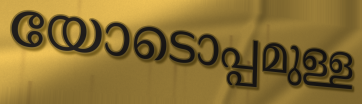
യോടൊപ്പമുള്ള